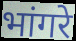
भांगरे